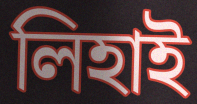
লিহাই